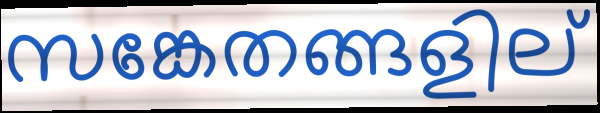
സങ്കേതങ്ങളില്